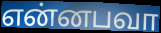
என்னபவா